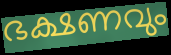
ഭക്ഷണവും